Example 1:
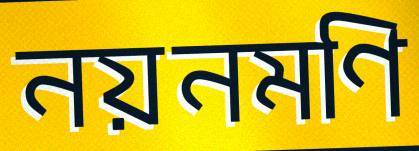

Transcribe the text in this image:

নয়নমণি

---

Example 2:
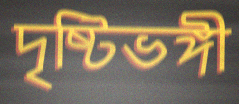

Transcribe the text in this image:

দৃষ্টিভঙ্গী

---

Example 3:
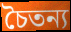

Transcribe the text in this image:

চৈতন্য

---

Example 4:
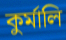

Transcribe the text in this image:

কুৰ্মালি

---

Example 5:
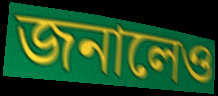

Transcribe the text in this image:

জনালেও